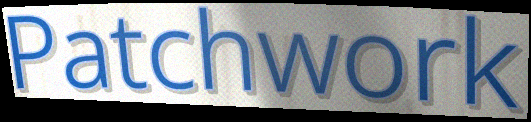
Patchwork